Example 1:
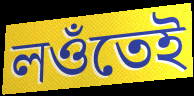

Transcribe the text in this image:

লওঁতেই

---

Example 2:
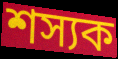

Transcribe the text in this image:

শস্যক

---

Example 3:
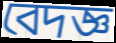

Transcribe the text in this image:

বেদজ্ঞ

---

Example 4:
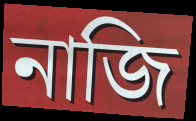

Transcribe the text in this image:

নাজি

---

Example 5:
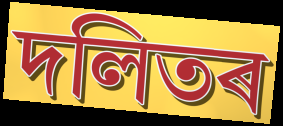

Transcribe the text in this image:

দলিতৰ